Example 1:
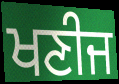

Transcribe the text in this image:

ਖਣੀਜ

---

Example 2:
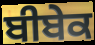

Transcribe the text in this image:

ਬੀਬੇਕ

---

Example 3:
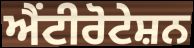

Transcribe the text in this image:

ਐਂਟੀਰੋਟੇਸ਼ਨ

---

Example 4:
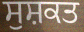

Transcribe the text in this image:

ਸੁਸ਼ਕਤ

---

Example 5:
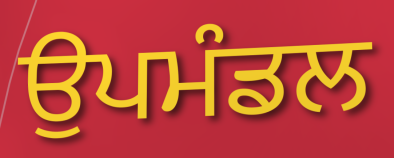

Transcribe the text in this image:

ਉਪਮੰਡਲ